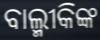
ବାଲ୍ମୀକିଙ୍କ